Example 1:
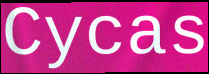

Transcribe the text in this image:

Cycas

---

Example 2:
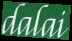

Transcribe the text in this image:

dalai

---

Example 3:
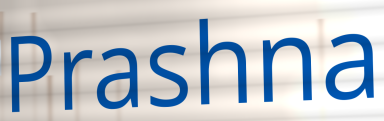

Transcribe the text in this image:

Prashna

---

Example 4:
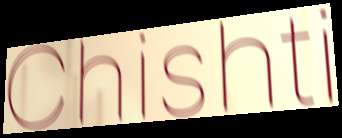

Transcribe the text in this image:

Chishti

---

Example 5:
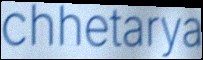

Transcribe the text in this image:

chhetarya